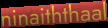
ninaiththaal